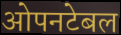
ओपनटेबल